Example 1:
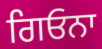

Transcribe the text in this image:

ਗਿਓਨਾ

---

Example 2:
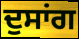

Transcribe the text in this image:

ਦੁਸਾਂਗ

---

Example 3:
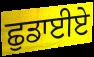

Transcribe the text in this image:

ਛੁਡਾਈਏ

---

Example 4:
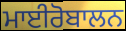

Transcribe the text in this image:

ਮਾਈਰੋਬਾਲਨ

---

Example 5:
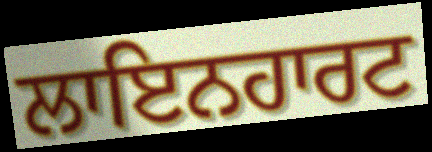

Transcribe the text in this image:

ਲਾਇਨਹਾਰਟ